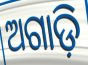
ଅଗାଡ଼ି